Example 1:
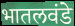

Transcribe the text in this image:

भातलवंडे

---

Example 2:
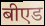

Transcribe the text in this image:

बीएड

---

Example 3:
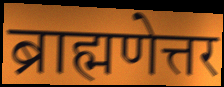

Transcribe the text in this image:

ब्राह्मणेत्तर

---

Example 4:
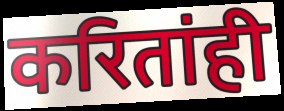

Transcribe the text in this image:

करितांही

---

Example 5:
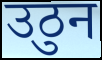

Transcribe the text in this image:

उठुन